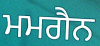
ਮਮਗੈਨ